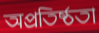
অপ্রতিষ্ঠতা